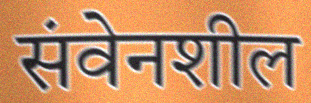
संवेनशील